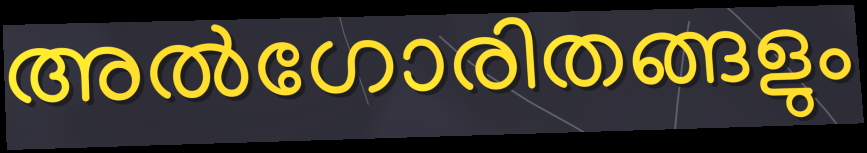
അൽഗോരിതങ്ങളും